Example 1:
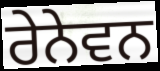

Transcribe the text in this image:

ਰੇਨੇਵਨ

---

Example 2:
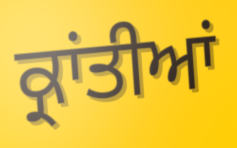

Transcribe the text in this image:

ਕ੍ਰਾਂਤੀਆਂ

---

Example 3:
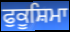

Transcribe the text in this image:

ਫੁਕੂਸ਼ਿਮਾ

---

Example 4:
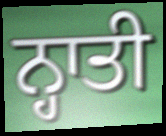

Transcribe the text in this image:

ਨ੍ਹਾਤੀ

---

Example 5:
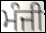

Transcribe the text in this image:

ਮੰਜੀ